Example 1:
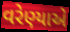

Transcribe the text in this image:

વરેણ્યાએ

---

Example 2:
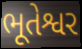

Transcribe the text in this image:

ભૂતેશ્વર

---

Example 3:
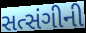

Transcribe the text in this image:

સત્સંગીની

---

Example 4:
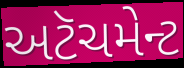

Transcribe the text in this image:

અટૅચમેન્ટ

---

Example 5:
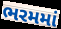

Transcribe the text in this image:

ભરમમાં